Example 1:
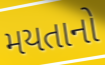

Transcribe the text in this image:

મયતાનો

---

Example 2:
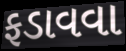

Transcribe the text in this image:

ફડાવવા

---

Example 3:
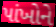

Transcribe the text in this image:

પાંખોને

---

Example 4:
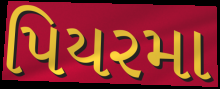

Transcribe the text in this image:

પિયરમા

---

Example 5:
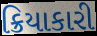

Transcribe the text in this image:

ક્રિયાકારી